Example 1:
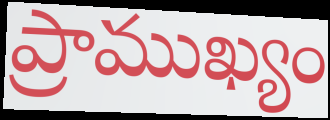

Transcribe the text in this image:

ప్రాముఖ్యం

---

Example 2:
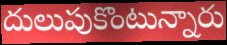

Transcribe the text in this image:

దులుపుకొంటున్నారు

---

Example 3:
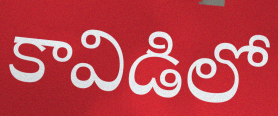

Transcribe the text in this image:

కావిడిలో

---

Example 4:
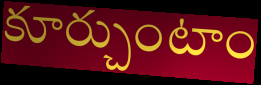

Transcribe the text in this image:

కూర్చుంటాం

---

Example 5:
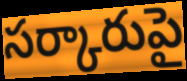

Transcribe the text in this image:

సర్కారుపై